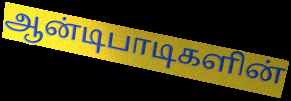
ஆன்டிபாடிகளின்